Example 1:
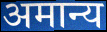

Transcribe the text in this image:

अमान्य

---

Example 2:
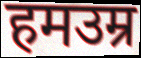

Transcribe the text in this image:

हमउम्र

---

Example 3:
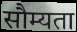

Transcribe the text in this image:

सौम्यता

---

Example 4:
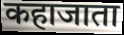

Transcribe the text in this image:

कहाजाता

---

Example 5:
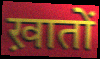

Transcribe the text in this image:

ख़ातों